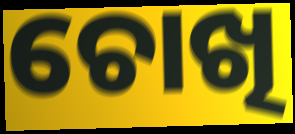
ଚୋଖି